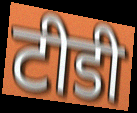
टीडी